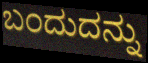
ಬಂದುದನ್ನು